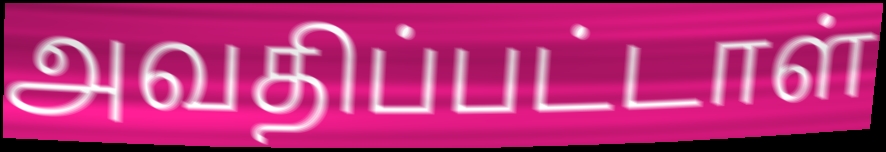
அவதிப்பட்டாள்